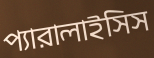
প্যারালাইসিস